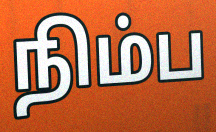
நிம்ப